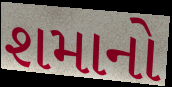
શમાનો